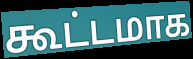
கூட்டமாக